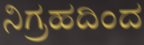
ನಿಗ್ರಹದಿಂದ